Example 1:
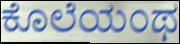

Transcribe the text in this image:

ಕೊಲೆಯಂಥ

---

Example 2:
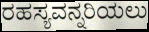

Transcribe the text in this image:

ರಹಸ್ಯವನ್ನರಿಯಲು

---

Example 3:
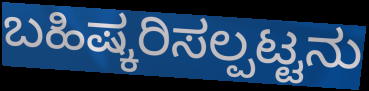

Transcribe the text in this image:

ಬಹಿಷ್ಕರಿಸಲ್ಪಟ್ಟನು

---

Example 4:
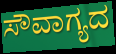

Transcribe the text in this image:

ಸೌವಾಗ್ಯದ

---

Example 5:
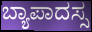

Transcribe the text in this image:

ಬ್ಯಾಪಾದಸ್ಸ